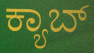
ಕ್ಯಾಬ್